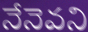
నేనెవని